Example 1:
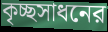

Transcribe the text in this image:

কৃচ্ছসাধনের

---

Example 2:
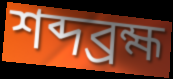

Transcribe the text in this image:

শব্দব্রহ্ম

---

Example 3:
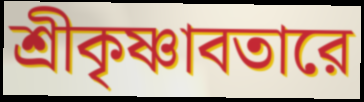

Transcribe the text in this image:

শ্রীকৃষ্ণাবতারে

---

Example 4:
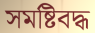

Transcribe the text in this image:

সমষ্টিবদ্ধ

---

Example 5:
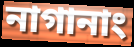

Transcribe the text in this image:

নাগানাং